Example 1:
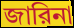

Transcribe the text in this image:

জারিনা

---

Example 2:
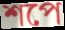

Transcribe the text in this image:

শপে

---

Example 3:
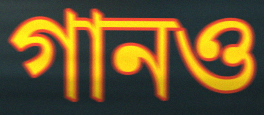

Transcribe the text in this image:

গানও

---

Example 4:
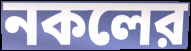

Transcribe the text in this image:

নকলের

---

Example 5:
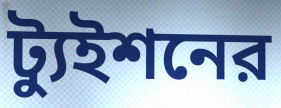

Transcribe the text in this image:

ট্যুইশনের